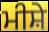
ਮੀਸ਼ੇ